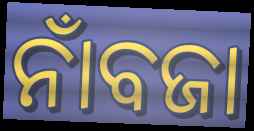
ନାଁବଜା